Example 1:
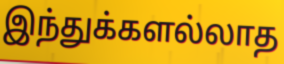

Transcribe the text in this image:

இந்துக்களல்லாத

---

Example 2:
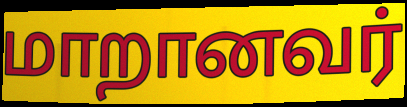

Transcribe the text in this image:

மாறானவர்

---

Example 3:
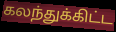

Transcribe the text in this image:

கலந்துக்கிட்ட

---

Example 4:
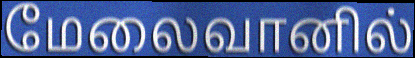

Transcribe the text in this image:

மேலைவானில்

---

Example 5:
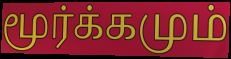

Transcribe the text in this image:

மூர்க்கமும்